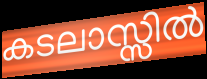
കടലാസ്സിൽ